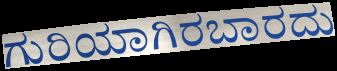
ಗುರಿಯಾಗಿರಬಾರದು